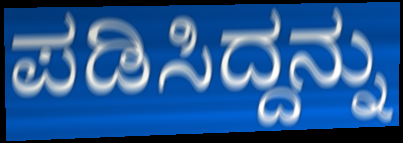
ಪಡಿಸಿದ್ದನ್ನು